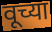
वूच्या